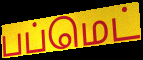
பப்மெட்